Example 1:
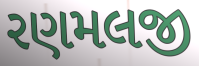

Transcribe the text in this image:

રણમલજી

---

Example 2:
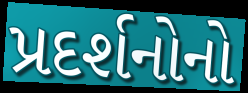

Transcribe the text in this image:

પ્રદર્શનોનો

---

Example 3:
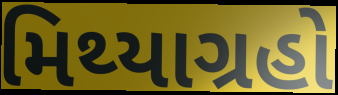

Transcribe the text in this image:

મિથ્યાગ્રહો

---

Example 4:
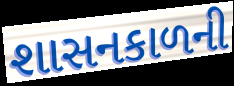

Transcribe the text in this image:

શાસનકાળની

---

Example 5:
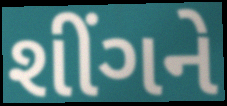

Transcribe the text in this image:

શીંગને